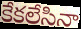
కేకలేసినా